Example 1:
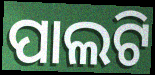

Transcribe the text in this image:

ପାଲଟି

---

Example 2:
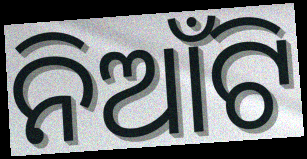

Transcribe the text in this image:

ନିଆଁଟି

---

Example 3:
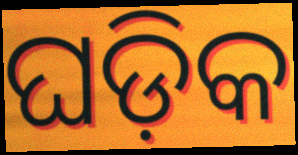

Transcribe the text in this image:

ଘଡ଼ିକ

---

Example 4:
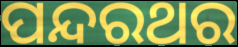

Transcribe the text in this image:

ପନ୍ଦରଥର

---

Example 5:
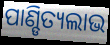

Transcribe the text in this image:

ପାଣ୍ଡିତ୍ୟଲାଭ